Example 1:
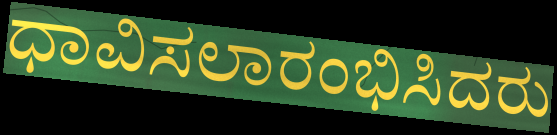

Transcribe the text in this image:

ಧಾವಿಸಲಾರಂಭಿಸಿದರು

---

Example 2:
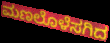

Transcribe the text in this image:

ಮಣಲೊಳೆಸಗಿದ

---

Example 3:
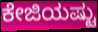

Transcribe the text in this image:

ಕೇಜಿಯಷ್ಟು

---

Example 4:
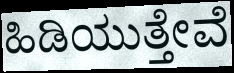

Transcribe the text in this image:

ಹಿಡಿಯುತ್ತೇವೆ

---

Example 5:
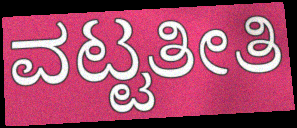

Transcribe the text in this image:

ವಟ್ಟತೀತಿ